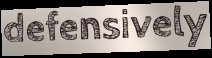
defensively